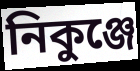
নিকুঞ্জে